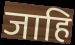
जाहि